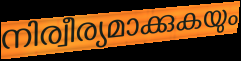
നിര്വീര്യമാക്കുകയും